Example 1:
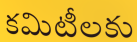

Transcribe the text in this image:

కమిటీలకు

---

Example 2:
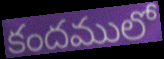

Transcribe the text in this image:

కందములో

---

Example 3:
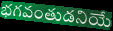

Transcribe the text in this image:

భగవంతుడనియే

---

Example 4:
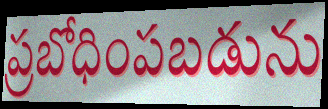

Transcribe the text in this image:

ప్రబోధింపబడును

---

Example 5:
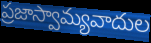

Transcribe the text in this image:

ప్రజాస్వామ్యవాదుల